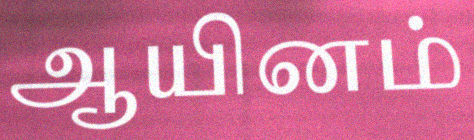
ஆயினம்